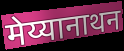
मेय्यानाथन